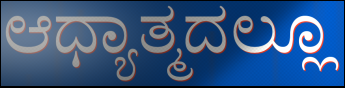
ಆಧ್ಯಾತ್ಮದಲ್ಲೂ